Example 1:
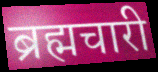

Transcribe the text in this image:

ब्रह्मचारी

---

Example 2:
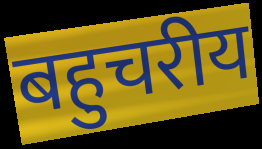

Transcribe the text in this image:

बहुचरीय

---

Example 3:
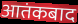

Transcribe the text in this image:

आतंकबाद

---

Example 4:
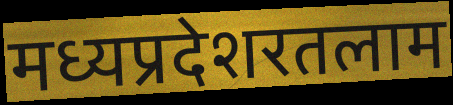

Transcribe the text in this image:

मध्यप्रदेशरतलाम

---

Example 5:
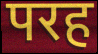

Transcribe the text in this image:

परह